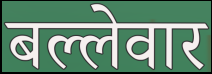
बल्लेवार